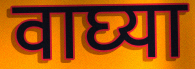
वाघ्या